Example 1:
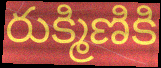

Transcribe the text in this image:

రుక్మిణికి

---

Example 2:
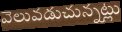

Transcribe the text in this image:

వెలువడుచున్నట్లు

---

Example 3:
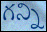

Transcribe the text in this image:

గన్ని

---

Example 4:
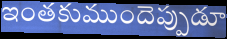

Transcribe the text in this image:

ఇంతకుముందెప్పుడూ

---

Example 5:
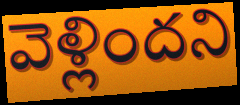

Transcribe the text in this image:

వెళ్లిందని